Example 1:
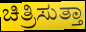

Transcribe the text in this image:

ಚಿತ್ರಿಸುತ್ತಾ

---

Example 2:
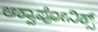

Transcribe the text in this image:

ಆಕ್ವಾಪೋನಿಕ್ಸ್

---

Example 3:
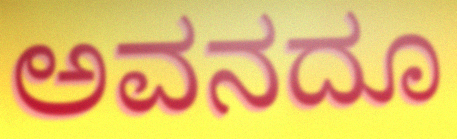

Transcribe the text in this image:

ಅವನದೂ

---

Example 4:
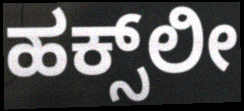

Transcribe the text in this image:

ಹಕ್ಸ್‌ಲೀ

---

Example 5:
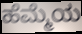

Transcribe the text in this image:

ಹೆಮ್ಮೆಯ